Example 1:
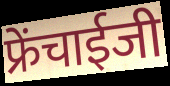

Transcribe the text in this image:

फ्रेंचाईजी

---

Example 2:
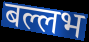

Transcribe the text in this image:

बल्लभ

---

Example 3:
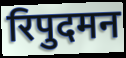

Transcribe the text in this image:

रिपुदमन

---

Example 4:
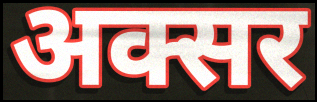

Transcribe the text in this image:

अक्सर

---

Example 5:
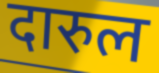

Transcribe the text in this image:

दारुल